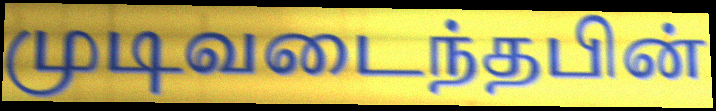
முடிவடைந்தபின்